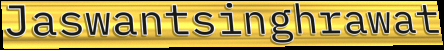
Jaswantsinghrawat